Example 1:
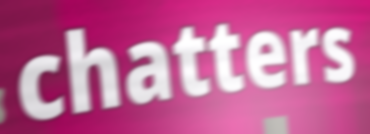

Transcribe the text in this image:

chatters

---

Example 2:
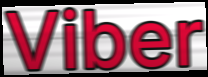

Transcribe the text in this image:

Viber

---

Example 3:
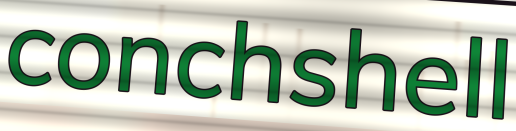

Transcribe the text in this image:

conchshell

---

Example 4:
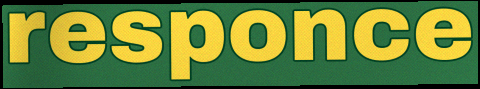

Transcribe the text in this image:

responce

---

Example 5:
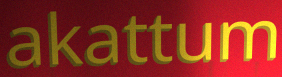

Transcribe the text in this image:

akattum